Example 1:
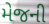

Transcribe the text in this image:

મેજની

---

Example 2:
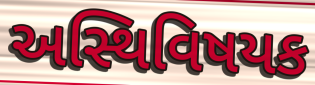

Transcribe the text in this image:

અસ્થિવિષયક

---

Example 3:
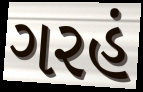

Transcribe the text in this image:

ગરહં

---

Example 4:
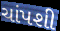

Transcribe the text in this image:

ચાંપશી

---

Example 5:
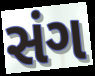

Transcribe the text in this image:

સંગ